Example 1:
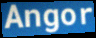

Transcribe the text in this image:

Angor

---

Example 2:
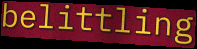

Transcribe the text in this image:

belittling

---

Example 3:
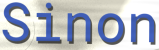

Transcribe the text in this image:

Sinon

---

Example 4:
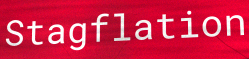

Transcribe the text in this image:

Stagflation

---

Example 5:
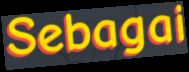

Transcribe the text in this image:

Sebagai